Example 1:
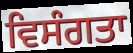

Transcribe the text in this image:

ਵਿਸੰਗਤਾ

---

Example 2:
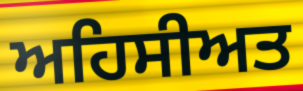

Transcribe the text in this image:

ਅਹਿਸੀਅਤ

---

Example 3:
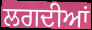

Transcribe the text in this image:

ਲਗਦੀਆਂ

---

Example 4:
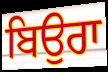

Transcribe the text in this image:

ਬਿਉਰਾ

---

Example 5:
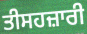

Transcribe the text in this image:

ਤੀਸਹਜ਼ਾਰੀ